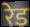
रेड